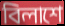
বিলাশে